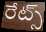
రేట్స్